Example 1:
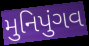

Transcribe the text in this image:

મુનિપુંગવ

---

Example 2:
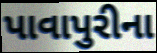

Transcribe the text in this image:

પાવાપુરીના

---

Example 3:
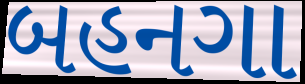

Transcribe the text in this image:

બહનગા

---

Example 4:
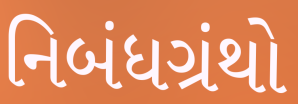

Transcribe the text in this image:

નિબંધગ્રંથો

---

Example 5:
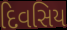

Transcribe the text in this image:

દિવસિય